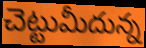
చెట్టుమీదున్న